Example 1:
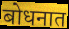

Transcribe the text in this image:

बोधनात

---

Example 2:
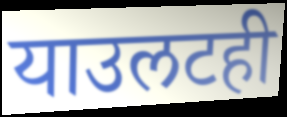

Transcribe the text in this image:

याउलटही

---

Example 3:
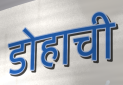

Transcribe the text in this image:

डोहाची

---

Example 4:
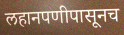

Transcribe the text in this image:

लहानपणीपासूनच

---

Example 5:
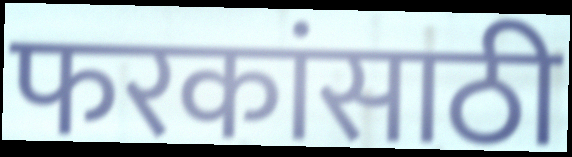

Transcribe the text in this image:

फरकांसाठी